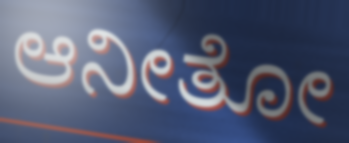
ಆನೀತೋ